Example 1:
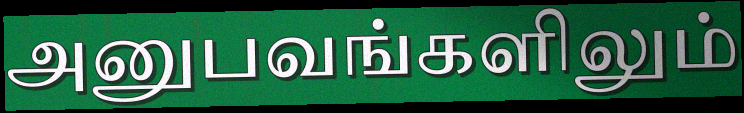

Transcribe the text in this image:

அனுபவங்களிலும்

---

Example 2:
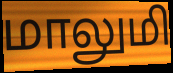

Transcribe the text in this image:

மாலுமி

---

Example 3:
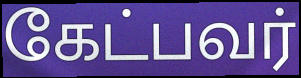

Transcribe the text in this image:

கேட்பவர்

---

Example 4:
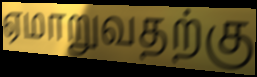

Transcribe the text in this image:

ஏமாறுவதற்கு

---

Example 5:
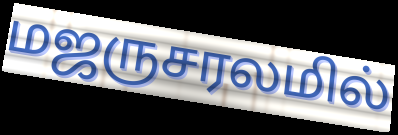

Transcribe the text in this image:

மஜருசரலமில்